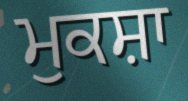
ਮੁਕਸ਼ਾ